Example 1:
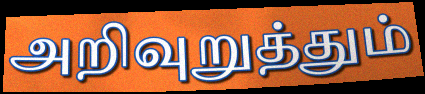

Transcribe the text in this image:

அறிவுறுத்தும்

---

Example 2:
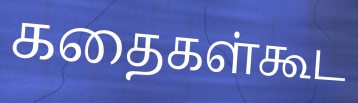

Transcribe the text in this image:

கதைகள்கூட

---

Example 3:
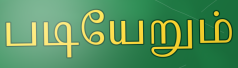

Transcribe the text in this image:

படியேறும்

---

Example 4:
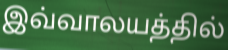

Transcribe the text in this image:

இவ்வாலயத்தில்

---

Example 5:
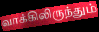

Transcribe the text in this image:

வாக்கிலிருந்தும்